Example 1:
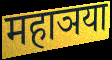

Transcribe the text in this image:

महाञया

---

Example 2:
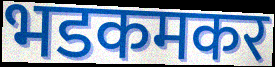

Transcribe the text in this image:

भडकमकर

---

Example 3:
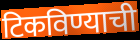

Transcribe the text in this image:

टिकविण्याची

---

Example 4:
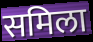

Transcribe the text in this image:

समिला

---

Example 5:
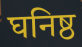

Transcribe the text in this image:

घनिष्ठ